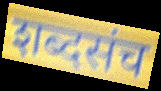
शब्दसंच